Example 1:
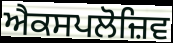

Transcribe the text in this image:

ਐਕਸਪਲੋਜ਼ਿਵ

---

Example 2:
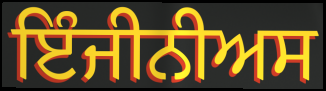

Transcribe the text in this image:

ਇੰਜੀਨੀਅਸ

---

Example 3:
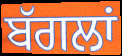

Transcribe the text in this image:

ਬੱਗਲਾਂ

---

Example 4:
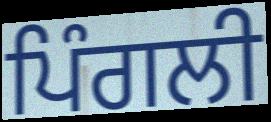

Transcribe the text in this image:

ਪਿੰਗਲੀ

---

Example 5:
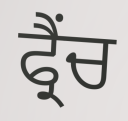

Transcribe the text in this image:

ਫ੍ਰੈਂਚ